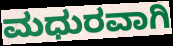
ಮಧುರವಾಗಿ